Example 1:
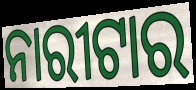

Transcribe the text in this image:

ନାରୀଟାର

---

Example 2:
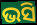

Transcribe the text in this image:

ଭସି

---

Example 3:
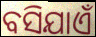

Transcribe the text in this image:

ବସିଯାଏଁ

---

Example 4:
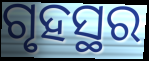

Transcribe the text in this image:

ଗୃହସ୍ଥର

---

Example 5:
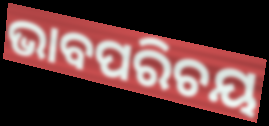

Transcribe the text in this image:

ଭାବପରିଚୟ